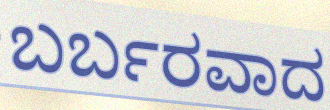
ಬರ್ಬರವಾದ